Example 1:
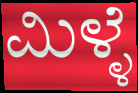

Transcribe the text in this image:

ಮಿಳ್ಳೆ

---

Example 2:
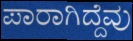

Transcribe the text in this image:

ಪಾರಾಗಿದ್ದೆವು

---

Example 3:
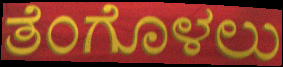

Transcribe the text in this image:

ತೆಂಗೊಳಲು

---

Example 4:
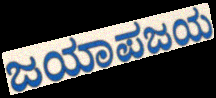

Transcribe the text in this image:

ಜಯಾಪಜಯ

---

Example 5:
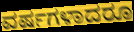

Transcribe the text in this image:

ವರ್ಷಗಳಾದರೂ